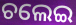
ଚଲେଇ